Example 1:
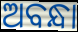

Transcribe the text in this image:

ଅବନ୍ଧା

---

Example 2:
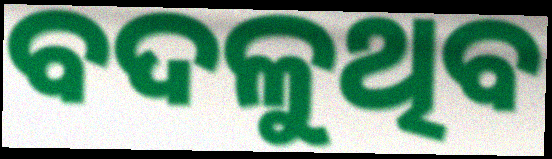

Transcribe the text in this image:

ବଦଳୁଥିବ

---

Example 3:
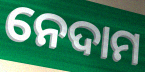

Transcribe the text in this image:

ନେଦାମ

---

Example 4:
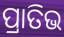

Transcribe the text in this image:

ପ୍ରାତିଭ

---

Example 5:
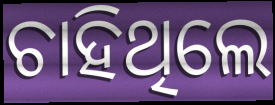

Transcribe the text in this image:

ଚାହିଥିଲେ